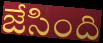
జేసింది